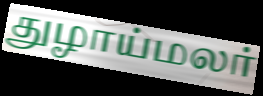
துழாய்மலர்